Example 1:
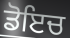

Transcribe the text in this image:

ਡੋਇਚ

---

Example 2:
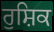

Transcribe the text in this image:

ਰੁਸ਼ਿਕ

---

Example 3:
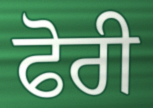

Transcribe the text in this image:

ਫੋਰੀ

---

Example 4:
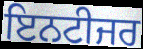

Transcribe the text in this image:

ਇਨਟੀਜਰ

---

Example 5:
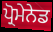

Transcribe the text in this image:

ਪ੍ਰੋਮੇਨੇਡ